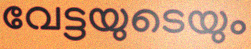
വേട്ടയുടെയും